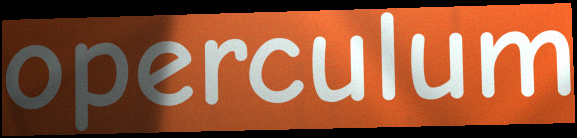
operculum